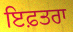
ਇਫ਼ਤਰਾ